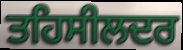
ਤਹਿਸੀਲਦਰ